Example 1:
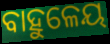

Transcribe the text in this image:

ବାହୁଳେୟ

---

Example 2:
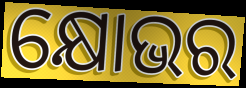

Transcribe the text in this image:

କ୍ଷୋଭର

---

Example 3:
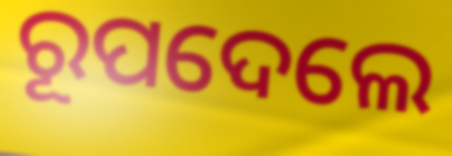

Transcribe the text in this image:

ରୂପଦେଲେ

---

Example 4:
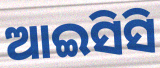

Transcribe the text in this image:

ଆଇସିସି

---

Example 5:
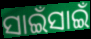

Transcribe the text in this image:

ସାଇଁସାଇଁ